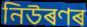
নিউৰণৰ